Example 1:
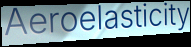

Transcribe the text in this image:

Aeroelasticity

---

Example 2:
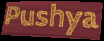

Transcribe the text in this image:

Pushya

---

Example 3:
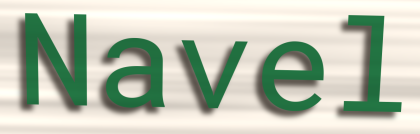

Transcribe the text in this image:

Navel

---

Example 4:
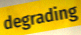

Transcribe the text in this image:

degrading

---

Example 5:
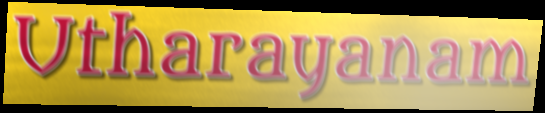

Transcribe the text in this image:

Utharayanam